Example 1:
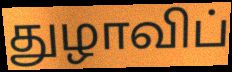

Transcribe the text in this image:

துழாவிப்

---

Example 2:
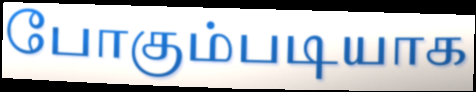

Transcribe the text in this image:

போகும்படியாக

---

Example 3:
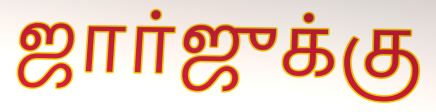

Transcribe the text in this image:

ஜார்ஜுக்கு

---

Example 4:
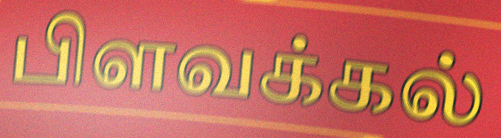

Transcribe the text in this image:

பிளவக்கல்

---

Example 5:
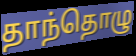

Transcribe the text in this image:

தாந்தொழு